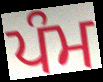
ਪੰਮ